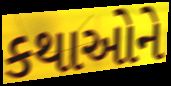
કથાઓને